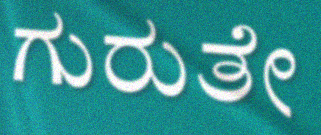
ಗುರುತೇ